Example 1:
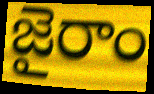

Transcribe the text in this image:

జైరాం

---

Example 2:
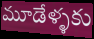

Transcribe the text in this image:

మూడేళ్ళకు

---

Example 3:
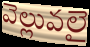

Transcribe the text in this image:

వెల్లువలై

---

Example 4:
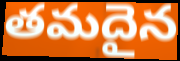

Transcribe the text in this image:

తమదైన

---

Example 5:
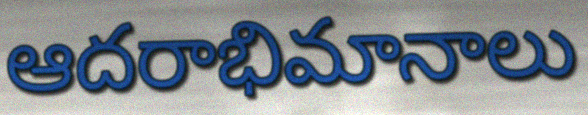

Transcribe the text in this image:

ఆదరాభిమానాలు